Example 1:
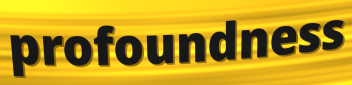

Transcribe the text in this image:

profoundness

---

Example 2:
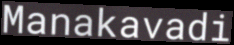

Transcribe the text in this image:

Manakavadi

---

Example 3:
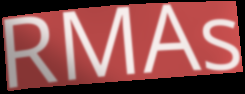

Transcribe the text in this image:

RMAs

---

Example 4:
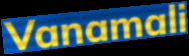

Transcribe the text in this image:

Vanamali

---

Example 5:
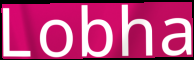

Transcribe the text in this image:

Lobha